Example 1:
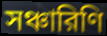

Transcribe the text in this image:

সঞ্চারিণি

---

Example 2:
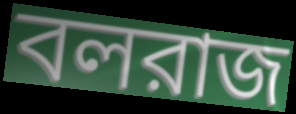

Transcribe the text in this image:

বলরাজ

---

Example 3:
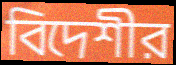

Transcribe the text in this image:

বিদেশীর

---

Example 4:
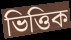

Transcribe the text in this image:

ভিত্তিক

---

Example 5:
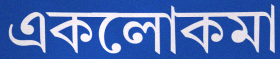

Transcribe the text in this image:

একলোকমা